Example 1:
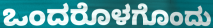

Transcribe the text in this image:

ಒಂದರೊಳಗೊಂದು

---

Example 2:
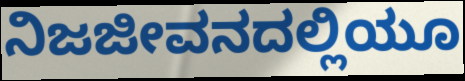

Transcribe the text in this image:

ನಿಜಜೀವನದಲ್ಲಿಯೂ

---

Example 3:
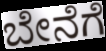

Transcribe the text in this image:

ಬೇನೆಗೆ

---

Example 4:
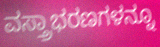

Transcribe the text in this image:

ವಸ್ತ್ರಾಭರಣಗಳನ್ನೂ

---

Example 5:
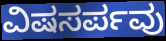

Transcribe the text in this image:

ವಿಷಸರ್ಪವು